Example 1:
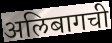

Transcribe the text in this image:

अलिबागची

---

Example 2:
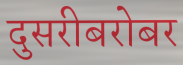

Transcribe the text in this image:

दुसरीबरोबर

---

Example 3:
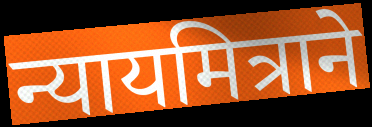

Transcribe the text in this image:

न्यायमित्राने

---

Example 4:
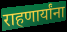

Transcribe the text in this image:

राहणार्यांना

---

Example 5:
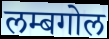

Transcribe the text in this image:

लम्बगोल